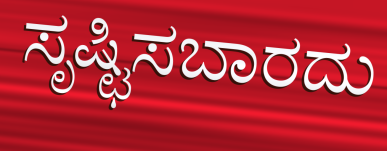
ಸೃಷ್ಟಿಸಬಾರದು